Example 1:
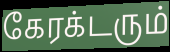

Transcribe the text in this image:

கேரக்டரும்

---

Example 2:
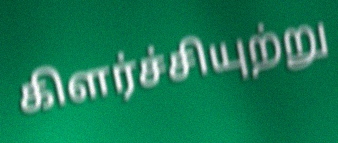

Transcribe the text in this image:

கிளர்ச்சியுற்று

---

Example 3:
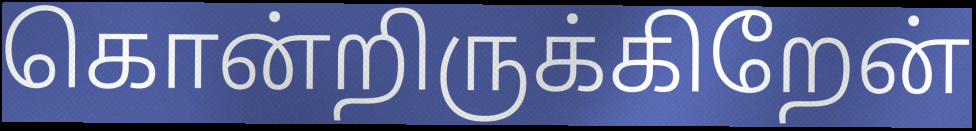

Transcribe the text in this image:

கொன்றிருக்கிறேன்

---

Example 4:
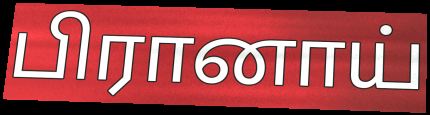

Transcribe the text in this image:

பிரானாய்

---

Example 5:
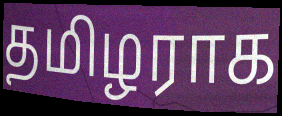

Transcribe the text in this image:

தமிழராக